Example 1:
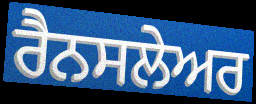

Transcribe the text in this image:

ਰੈਨਸਲੇਅਰ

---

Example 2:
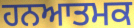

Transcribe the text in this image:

ਹਨਆਤਮਕ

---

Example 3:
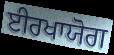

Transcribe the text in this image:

ਈਰਖਾਯੋਗ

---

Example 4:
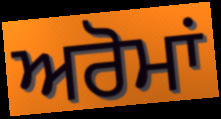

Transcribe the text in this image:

ਅਰੋਮਾਂ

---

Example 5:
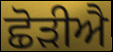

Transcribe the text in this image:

ਛੋੜੀਐ